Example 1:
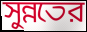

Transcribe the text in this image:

সুন্নতের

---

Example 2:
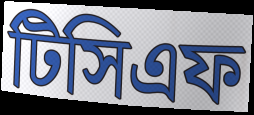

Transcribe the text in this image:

টিসিএফ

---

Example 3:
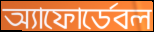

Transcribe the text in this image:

অ্যাফোর্ডেবল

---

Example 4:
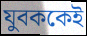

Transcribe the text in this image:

যুবককেই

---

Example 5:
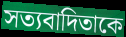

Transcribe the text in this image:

সত্যবাদিতাকে